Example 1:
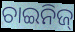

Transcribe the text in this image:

ଚାଇନିଜ୍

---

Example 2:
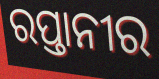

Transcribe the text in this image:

ରପ୍ତାନୀର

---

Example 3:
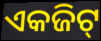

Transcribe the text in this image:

ଏକଜିଟ୍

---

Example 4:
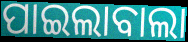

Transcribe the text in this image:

ପାଇଲାବାଲା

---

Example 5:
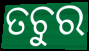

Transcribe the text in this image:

ତଚୁର